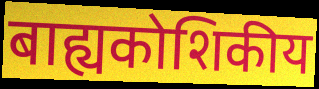
बाह्यकोशिकीय